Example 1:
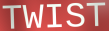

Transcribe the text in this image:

TWIST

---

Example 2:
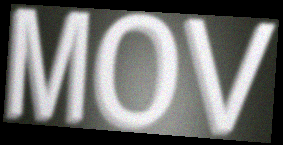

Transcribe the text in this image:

MOV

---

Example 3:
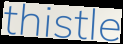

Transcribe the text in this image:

thistle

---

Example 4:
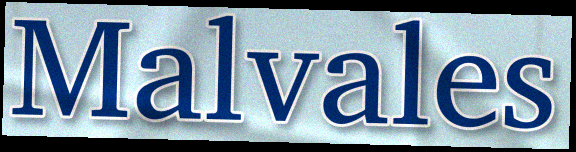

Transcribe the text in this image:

Malvales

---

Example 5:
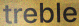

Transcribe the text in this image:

treble